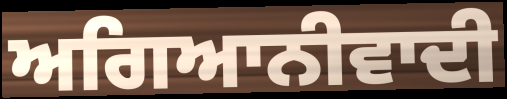
ਅਗਿਆਨੀਵਾਦੀ